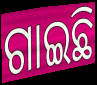
ଗାଇଛି